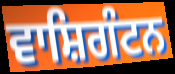
ਵਾਸ਼ਿਗੰਟਨ